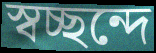
স্বচ্ছন্দে